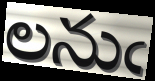
లనుఁ